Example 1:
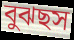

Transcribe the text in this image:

বুঝছস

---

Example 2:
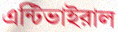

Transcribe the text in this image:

এন্টিভাইরাল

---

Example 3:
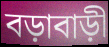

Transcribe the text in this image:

বড়াবাড়ী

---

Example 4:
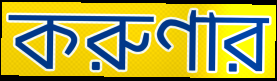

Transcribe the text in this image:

করুণার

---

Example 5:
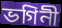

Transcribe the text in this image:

ভগিনী